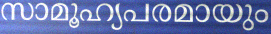
സാമൂഹ്യപരമായും